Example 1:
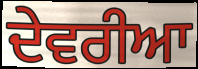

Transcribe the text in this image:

ਦੇਵਰੀਆ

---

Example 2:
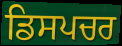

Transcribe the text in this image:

ਡਿਸਪਚਰ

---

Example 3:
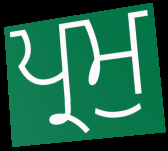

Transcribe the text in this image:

ਪ੍ਰਮੁ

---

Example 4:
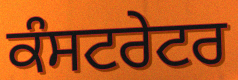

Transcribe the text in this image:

ਕੰਸਟਰੇਟਰ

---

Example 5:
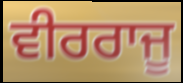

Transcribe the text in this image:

ਵੀਰਰਾਜੂ